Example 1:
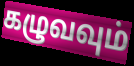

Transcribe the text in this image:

கழுவவும்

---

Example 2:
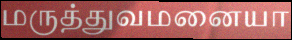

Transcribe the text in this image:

மருத்துவமனையா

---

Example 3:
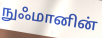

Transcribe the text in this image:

நுஃமானின்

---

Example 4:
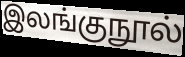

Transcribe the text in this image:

இலங்குநூல்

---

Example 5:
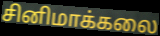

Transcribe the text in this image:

சினிமாக்கலை